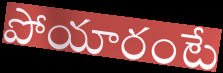
పోయారంటే